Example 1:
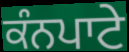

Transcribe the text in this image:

ਕੰਨਪਾਟੇ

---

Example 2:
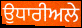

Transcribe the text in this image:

ਉਧਾਰੀਅਲੇ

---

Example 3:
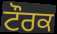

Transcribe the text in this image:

ਟੌਰਕ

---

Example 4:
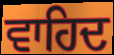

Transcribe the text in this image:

ਵਾਹਿਦ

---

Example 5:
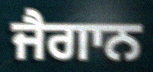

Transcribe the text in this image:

ਜੈਗਾਨ